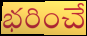
భరించే